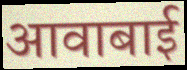
आवाबाई